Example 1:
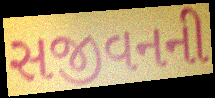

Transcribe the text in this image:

સજીવનની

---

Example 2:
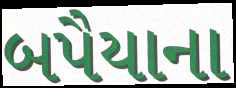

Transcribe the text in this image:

બપૈયાના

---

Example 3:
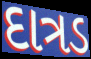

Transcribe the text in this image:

દાત્રડ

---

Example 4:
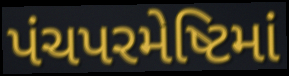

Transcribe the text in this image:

પંચપરમેષ્ટિમાં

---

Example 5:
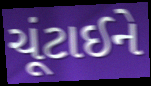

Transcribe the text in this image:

ચૂંટાઈને